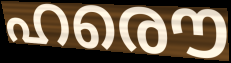
ഹരൌ